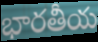
భారతీయ